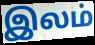
இலம்